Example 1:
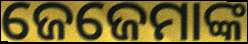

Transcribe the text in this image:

ଜେଜେମାଙ୍କ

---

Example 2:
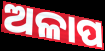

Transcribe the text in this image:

ଅଳାପ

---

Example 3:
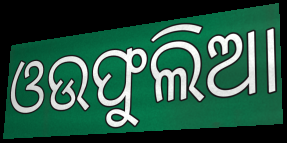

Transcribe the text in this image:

ଓଉଫୁଲିଆ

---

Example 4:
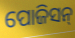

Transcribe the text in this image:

ପୋଜିସନ୍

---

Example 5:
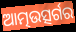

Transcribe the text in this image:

ଆତ୍ମଉତ୍ସର୍ଗର